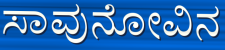
ಸಾವುನೋವಿನ